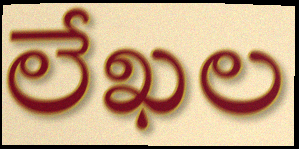
లేఖల